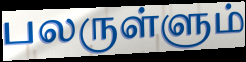
பலருள்ளும்